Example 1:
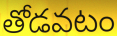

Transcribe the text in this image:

తోడవటం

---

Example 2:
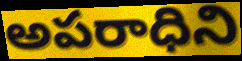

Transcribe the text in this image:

అపరాధిని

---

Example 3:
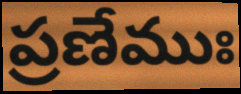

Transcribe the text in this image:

ప్రణేముః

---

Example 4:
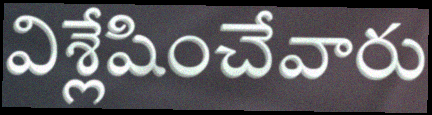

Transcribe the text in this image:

విశ్లేషించేవారు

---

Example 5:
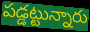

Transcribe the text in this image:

పడ్డట్టున్నారు